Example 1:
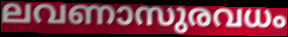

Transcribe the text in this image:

ലവണാസുരവധം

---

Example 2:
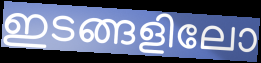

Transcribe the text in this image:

ഇടങ്ങളിലോ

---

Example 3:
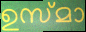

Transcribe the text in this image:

ഉസ്മാ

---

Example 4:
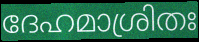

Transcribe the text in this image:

ദേഹമാശ്രിതഃ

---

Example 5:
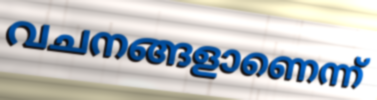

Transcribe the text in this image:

വചനങ്ങളാണെന്ന്